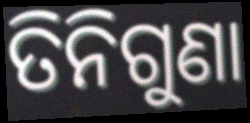
ତିନିଗୁଣା